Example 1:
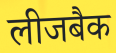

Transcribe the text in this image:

लीजबैक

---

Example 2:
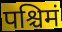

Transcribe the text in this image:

पश्चिमं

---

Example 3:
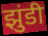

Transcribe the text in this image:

झुंडी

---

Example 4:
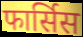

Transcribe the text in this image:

फार्सिस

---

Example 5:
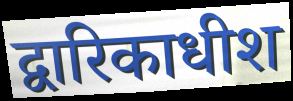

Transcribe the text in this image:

द्वारिकाधीश